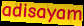
adisayam